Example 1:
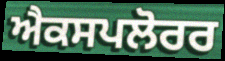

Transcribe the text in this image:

ਐਕਸਪਲੋਰਰ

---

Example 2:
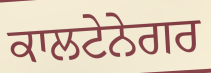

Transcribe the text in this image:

ਕਾਲਟੇਨੇਗਰ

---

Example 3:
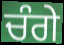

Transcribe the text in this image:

ਚੰਗੇ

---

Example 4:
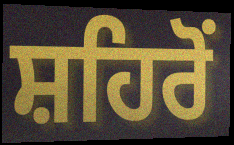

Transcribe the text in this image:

ਸ਼ਹਿਰੋਂ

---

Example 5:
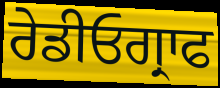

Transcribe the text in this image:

ਰੇਡੀਓਗ੍ਰਾਫ